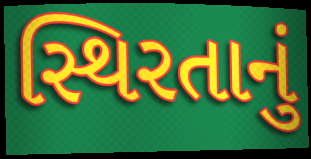
સ્થિરતાનું